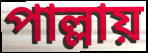
পাল্লায়